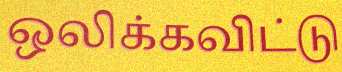
ஒலிக்கவிட்டு